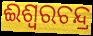
ଈଶ୍ୱରଚନ୍ଦ୍ର